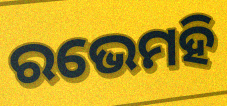
ରଭେମହି